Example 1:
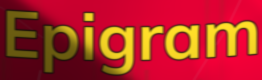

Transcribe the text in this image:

Epigram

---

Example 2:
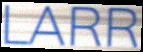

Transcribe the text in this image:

LARR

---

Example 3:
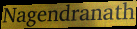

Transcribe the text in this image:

Nagendranath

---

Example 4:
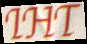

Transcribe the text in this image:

IHT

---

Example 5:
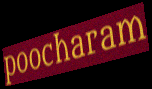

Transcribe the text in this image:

poocharam